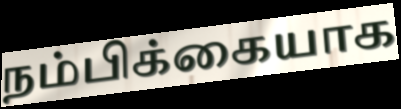
நம்பிக்கையாக